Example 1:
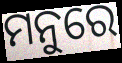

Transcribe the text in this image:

ମନୁରେ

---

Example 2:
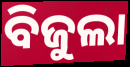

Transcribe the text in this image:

ବିଜୁଲା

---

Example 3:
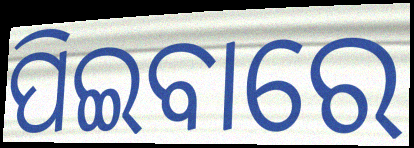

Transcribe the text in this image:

ପିଇବାରେ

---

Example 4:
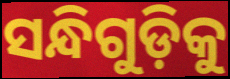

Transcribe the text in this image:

ସନ୍ଧିଗୁଡ଼ିକୁ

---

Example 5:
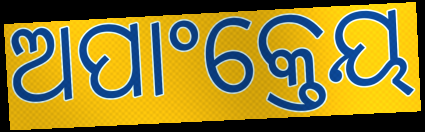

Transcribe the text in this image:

ଅପାଂକ୍ତେୟ